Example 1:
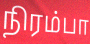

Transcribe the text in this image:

நிரம்பா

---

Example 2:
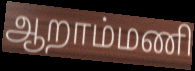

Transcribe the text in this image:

ஆறாம்மணி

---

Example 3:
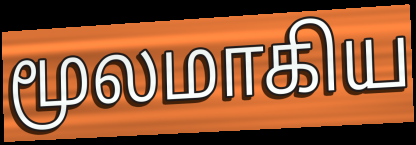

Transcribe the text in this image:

மூலமாகிய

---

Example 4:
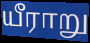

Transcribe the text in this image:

யீராறு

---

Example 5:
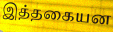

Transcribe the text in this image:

இத்தகையன